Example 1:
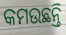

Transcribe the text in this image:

କମଉଛନ୍ତି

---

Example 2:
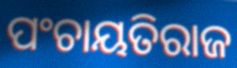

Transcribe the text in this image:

ପଂଚାୟତିରାଜ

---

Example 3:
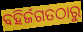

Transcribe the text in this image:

ବହିର୍ଜଗତଠାରୁ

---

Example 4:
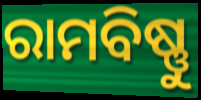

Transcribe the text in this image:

ରାମବିଷ୍ଣୁ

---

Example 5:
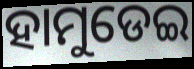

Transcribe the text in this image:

ହାମୁଡେଇ